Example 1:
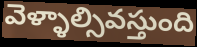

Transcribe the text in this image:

వెళ్ళాల్సివస్తుంది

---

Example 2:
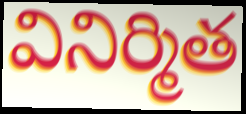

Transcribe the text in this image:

వినిర్మిత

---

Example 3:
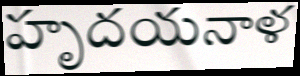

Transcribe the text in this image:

హృదయనాళ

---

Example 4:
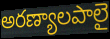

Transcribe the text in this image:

అరణ్యాలపాలై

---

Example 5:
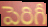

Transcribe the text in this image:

పెరిగీ